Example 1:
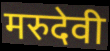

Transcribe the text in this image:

मरुदेवी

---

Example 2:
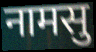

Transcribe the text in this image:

नामसु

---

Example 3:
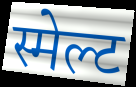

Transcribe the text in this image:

स्मेल्ट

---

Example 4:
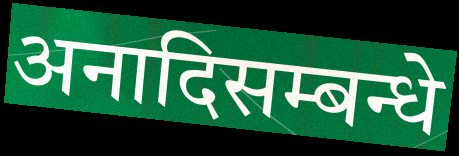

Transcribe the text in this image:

अनादिसम्बन्धे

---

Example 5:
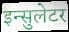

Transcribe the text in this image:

इन्सुलेटर